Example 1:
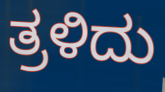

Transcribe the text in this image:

ತ್ರಳಿದು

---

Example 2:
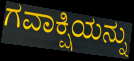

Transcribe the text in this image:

ಗವಾಕ್ಷಿಯನ್ನು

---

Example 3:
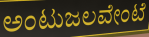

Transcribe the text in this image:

ಅಂಟುಜಲವೇಂಟೆ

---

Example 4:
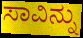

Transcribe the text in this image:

ಸಾವಿನ್ನು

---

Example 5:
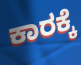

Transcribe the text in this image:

ಕಾರಕ್ಕೆ